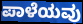
ಪಾಳೆಯವು